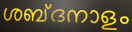
ശബ്ദനാളം